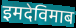
इमदेविमाब